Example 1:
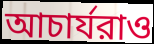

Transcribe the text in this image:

আচার্যরাও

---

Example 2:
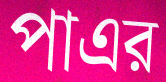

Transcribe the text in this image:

পাএর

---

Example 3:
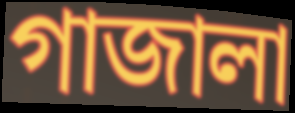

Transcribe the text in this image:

গাজালা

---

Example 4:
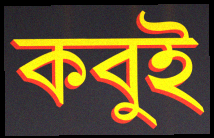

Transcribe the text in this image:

কবুই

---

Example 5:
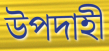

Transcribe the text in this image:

উপদাহী